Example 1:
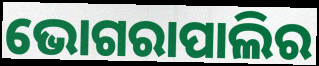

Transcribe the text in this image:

ଭୋଗରାପାଲିର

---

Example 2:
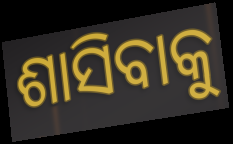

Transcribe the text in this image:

ଶାସିବାକୁ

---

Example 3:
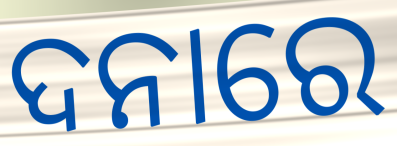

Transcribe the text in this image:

ଦନାରେ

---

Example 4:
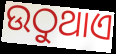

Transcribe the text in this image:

ଉଠୁଥାଏ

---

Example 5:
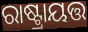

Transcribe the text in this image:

ରାଷ୍ଟ୍ରାୟତ୍ତ